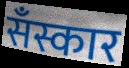
सँस्कार